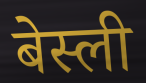
बेस्ली